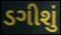
ડગીશું